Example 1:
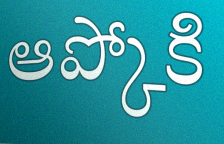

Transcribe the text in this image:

ఆప్కోకి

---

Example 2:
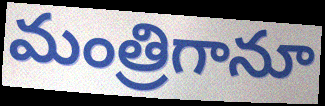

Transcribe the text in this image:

మంత్రిగానూ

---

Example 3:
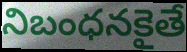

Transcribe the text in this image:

నిబంధనకైతే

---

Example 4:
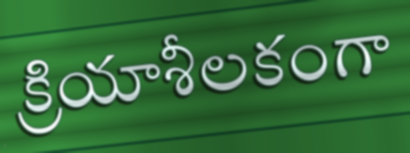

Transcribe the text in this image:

క్రియాశీలకంగా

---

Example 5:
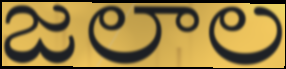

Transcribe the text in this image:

జలాల